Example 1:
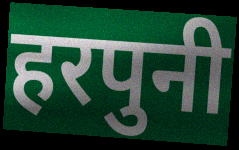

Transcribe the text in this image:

हरपुनी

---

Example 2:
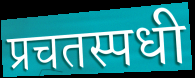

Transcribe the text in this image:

प्रचतस्पधी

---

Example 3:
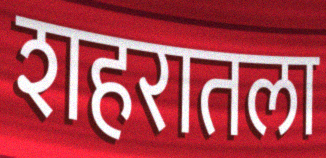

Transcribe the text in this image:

शहरातला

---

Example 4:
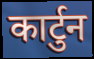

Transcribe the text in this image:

कार्टुन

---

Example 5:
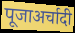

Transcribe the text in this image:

पूजाअर्चादी